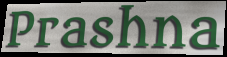
Prashna